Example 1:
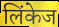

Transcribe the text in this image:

लिंकेज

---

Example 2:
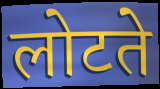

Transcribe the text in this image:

लोटते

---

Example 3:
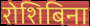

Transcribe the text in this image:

रोशिबिना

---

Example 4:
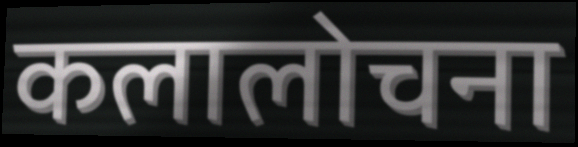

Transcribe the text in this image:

कलालोचना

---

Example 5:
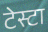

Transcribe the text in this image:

टेस्टा